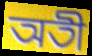
অতী